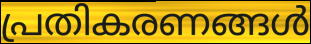
പ്രതികരണങ്ങൾ